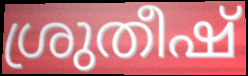
ശ്രുതീഷ്